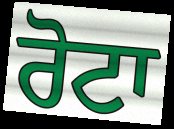
ਰੋਟਾ